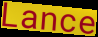
Lance